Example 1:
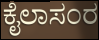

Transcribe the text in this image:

ಕೈಲಾಸಂರ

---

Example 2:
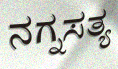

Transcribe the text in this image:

ನಗ್ನಸತ್ಯ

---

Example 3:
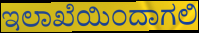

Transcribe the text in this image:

ಇಲಾಖೆಯಿಂದಾಗಲಿ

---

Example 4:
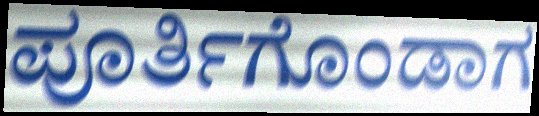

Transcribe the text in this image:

ಪೂರ್ತಿಗೊಂಡಾಗ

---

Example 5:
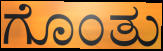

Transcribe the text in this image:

ಗೊಂತು